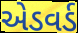
એડવર્ડ